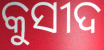
କୁସୀଦ